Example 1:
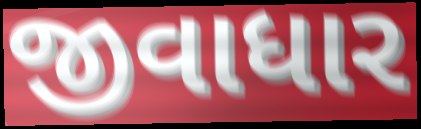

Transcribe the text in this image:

જીવાધાર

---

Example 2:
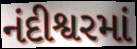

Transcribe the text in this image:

નંદીશ્વરમાં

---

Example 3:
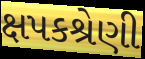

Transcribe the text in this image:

ક્ષપકશ્રેણી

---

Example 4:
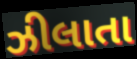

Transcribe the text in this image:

ઝીલાતા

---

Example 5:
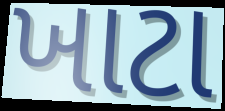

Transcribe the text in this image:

ખાટા